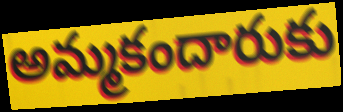
అమ్మకందారుకు